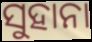
ସୁହାନା